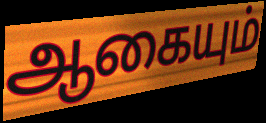
ஆகையும்